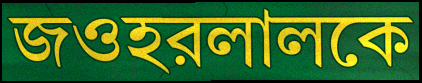
জওহরলালকে